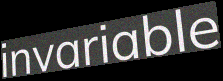
invariable